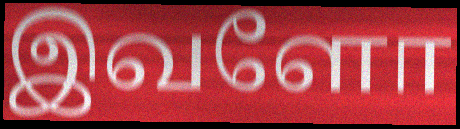
இவளோ